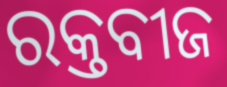
ରକ୍ତବୀଜ